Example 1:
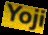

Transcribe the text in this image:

Yoji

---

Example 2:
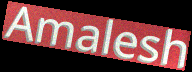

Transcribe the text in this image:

Amalesh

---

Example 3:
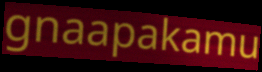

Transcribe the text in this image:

gnaapakamu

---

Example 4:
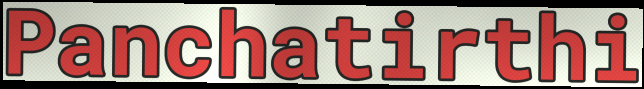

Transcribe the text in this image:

Panchatirthi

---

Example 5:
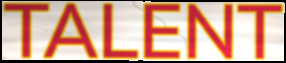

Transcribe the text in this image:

TALENT